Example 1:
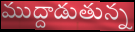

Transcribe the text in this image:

ముద్దాడుతున్న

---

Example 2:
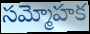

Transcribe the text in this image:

సమ్మోహక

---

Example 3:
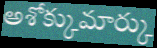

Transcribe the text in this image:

అశోక్కుమార్కు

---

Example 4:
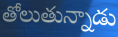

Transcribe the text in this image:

తోలుతున్నాడు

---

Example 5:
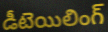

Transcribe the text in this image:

డీటెయిలింగ్